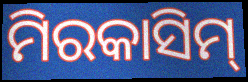
ମିରକାସିମ୍